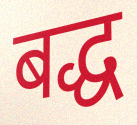
बद्ध